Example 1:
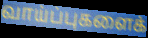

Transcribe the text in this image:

வாய்ப்புகளைக்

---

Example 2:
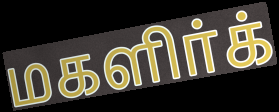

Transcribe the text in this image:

மகளிர்க்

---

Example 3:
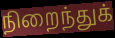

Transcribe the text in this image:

நிறைந்துக்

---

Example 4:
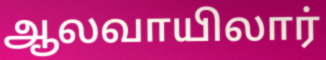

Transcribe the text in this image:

ஆலவாயிலார்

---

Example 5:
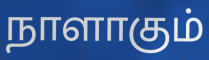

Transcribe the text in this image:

நாளாகும்